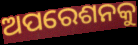
ଅପରେଶନକୁ